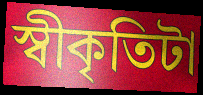
স্বীকৃতিটা